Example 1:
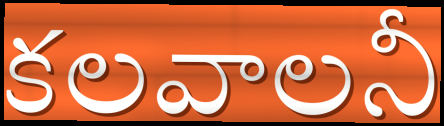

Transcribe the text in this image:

కలవాలనీ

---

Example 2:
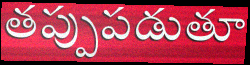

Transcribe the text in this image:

తప్పుపడుతూ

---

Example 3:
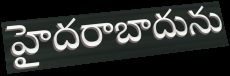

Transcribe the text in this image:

హైదరాబాదును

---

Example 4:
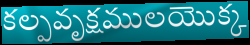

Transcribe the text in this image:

కల్పవృక్షములయొక్క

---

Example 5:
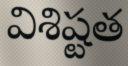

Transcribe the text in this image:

విశిష్టత